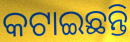
କଟାଇଛନ୍ତି